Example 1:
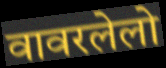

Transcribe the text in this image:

वावरलेलो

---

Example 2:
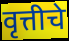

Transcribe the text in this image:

वृत्तीचे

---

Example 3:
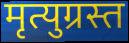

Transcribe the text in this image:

मृत्युग्रस्त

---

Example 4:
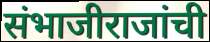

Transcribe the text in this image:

संभाजीराजांची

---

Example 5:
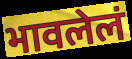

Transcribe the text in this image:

भावलेलं